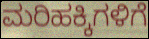
ಮರಿಹಕ್ಕಿಗಳಿಗೆ